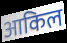
आकिल